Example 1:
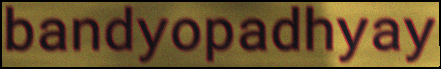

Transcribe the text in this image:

bandyopadhyay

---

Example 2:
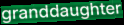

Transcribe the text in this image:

granddaughter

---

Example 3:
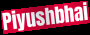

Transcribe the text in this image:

Piyushbhai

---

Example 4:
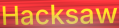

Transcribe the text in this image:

Hacksaw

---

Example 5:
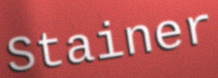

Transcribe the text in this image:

Stainer